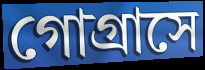
গোগ্রাসে